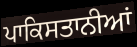
ਪਾਕਿਸਤਾਨੀਆਂ